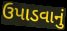
ઉપાડવાનું